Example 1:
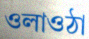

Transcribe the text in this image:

ওলাওঠা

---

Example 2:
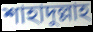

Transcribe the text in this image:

শাহাদুল্লাহ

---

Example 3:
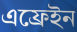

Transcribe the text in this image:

এফ্রেইন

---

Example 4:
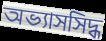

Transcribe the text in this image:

অভ্যাসসিদ্ধ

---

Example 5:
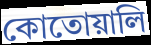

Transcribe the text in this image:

কোতোয়ালি